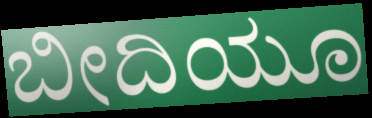
ಬೀದಿಯೂ